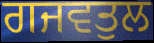
ਗਜਵਤੁਲ